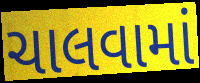
ચાલવામાં